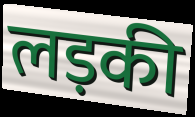
लड़की